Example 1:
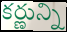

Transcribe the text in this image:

కర్ణున్ని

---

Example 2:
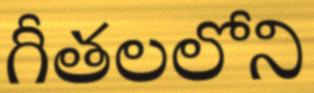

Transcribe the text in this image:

గీతలలోని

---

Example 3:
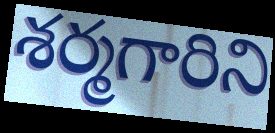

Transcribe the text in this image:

శర్మగారిని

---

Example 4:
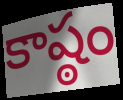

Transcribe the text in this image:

కాష్ఠం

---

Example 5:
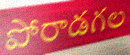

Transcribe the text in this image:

పోరాడగల